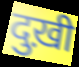
दुख़ी